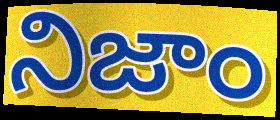
నిజాం